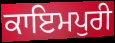
ਕਾਇਮਪੁਰੀ